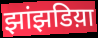
झांझडिय़ा